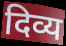
दिव्य